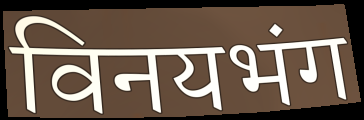
विनयभंग